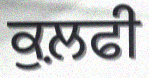
ਕੁਲ਼ਫੀ